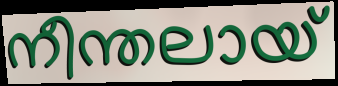
നീന്തലായ്